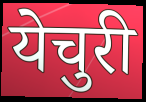
येचुरी